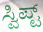
ಸ್ವಿಪ್ಟ್